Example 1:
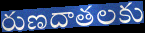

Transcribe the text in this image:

రుణదాతలకు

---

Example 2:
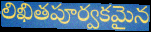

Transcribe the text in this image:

లిఖితపూర్వకమైన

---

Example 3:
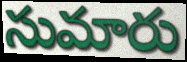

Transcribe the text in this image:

సుమారు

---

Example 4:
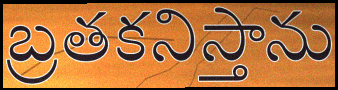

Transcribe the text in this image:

బ్రతకనిస్తాను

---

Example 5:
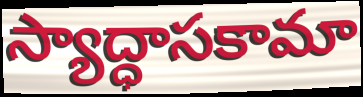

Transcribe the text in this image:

స్యాద్ధాసకామా